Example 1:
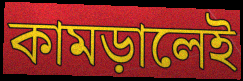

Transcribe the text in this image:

কামড়ালেই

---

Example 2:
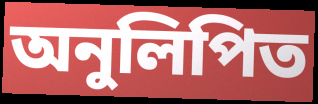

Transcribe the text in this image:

অনুলিপিত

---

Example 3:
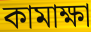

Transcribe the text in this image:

কামাক্ষা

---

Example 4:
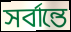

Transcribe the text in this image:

সর্বান্তে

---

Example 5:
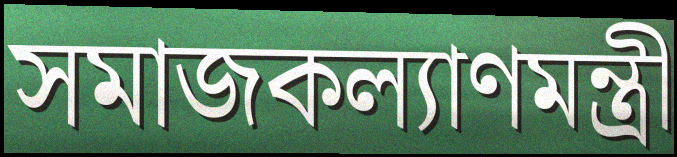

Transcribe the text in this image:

সমাজকল্যাণমন্ত্রী